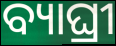
ବ୍ୟାଘ୍ରୀ